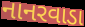
નાનરવાડા